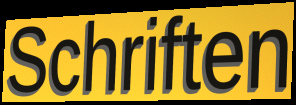
Schriften